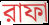
রাফা